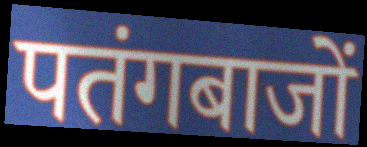
पतंगबाजों